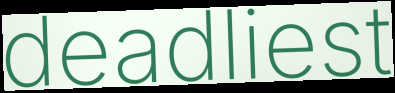
deadliest